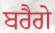
ਬਰੈਗੇ